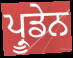
ਪ੍ਰੂਡੇਨ